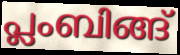
പ്ലംബിങ്ങ്